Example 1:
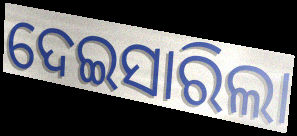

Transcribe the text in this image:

ଦେଇସାରିଲା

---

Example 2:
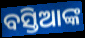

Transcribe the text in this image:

ବସ୍ତିଆଙ୍କ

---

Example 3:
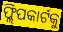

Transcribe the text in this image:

ଫ୍ଲିପକାର୍ଟକୁ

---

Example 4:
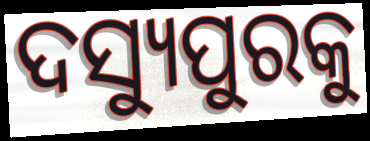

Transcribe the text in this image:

ଦସ୍ୟୁପୁରକୁ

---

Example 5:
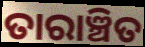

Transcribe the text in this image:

ତାରାଞ୍ଚିତ